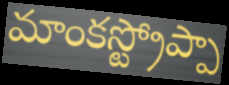
మాంకస్ట్రోప్పా